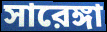
সারেঙ্গা